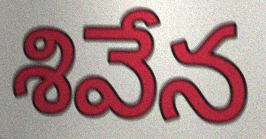
శివేన